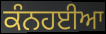
ਕੰਨਹਈਆ